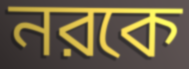
নরকে